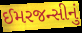
ઈમરજન્સીનું